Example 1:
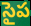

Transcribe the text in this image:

సైప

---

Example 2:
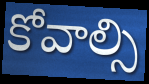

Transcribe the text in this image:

కోవాల్సి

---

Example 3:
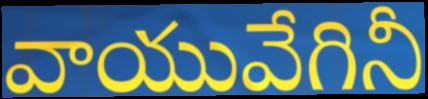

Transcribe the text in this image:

వాయువేగినీ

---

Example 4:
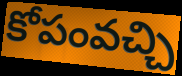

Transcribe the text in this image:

కోపంవచ్చి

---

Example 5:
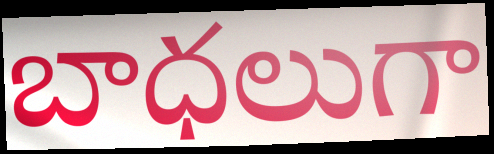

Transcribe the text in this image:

బాధలుగా